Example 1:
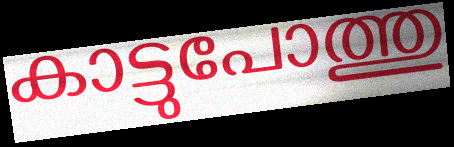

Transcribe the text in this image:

കാട്ടുപോത്തു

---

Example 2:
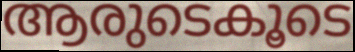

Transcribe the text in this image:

ആരുടെകൂടെ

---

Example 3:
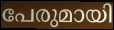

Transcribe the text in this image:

പേരുമായി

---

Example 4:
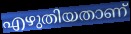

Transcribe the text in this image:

എഴുതിയതാണ്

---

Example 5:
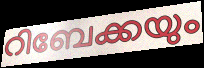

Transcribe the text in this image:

റിബേക്കയും